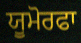
ਯੂਮੋਰਫਾ